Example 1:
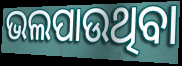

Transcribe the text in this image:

ଭଲପାଉଥିବା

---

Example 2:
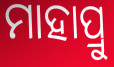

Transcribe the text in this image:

ମାହାପ୍ରୁ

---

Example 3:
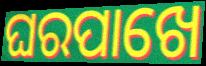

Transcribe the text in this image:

ଘରପାଖେ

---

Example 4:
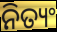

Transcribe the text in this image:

ନିତ୍ୟଂ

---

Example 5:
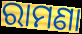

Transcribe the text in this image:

ରାମଣା